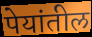
पेयांतील